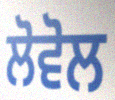
ਲੋਵੋਲ